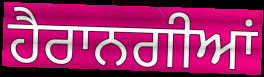
ਹੈਰਾਨਗੀਆਂ